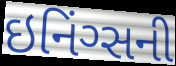
ઇનિંગ્સની